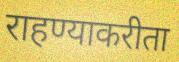
राहण्याकरीता